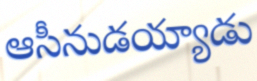
ఆసీనుడయ్యాడు